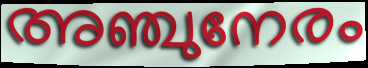
അഞ്ചുനേരം